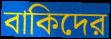
বাকিদের